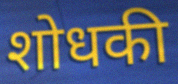
शोधकी